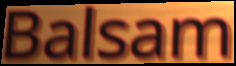
Balsam